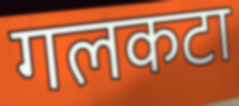
गलकटा